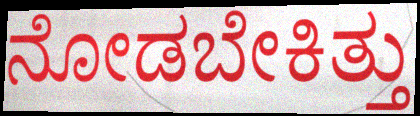
ನೋಡಬೇಕಿತ್ತು